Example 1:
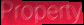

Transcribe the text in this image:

Property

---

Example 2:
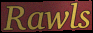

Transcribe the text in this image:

Rawls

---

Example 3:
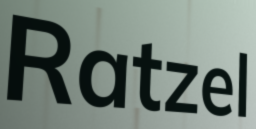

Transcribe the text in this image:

Ratzel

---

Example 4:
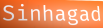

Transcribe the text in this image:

Sinhagad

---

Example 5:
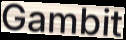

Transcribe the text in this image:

Gambit